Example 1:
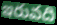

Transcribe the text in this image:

ఇరువది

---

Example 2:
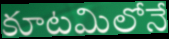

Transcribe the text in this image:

కూటమిలోనే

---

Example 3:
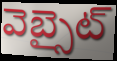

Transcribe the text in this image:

వెబ్సైట్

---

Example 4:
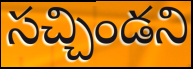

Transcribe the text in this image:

సచ్చిండని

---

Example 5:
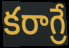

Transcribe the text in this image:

కరాగ్రే